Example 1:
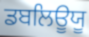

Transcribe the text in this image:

ਡਬਲਿਊਯੂ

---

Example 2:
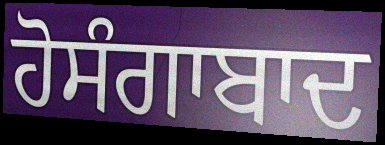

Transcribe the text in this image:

ਹੋਸੰਗਾਬਾਦ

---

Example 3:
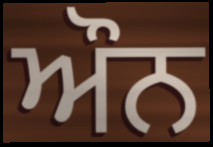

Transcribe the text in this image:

ਔਨ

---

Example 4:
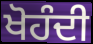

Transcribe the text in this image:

ਖੋਹੰਦੀ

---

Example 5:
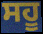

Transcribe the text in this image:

ਸਹੂ